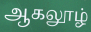
ஆகலூழ்